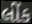
લીંક